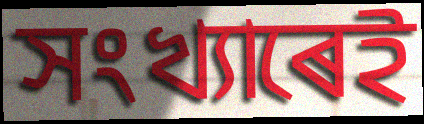
সংখ্যাৰেই